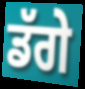
ਡੱਗੇ